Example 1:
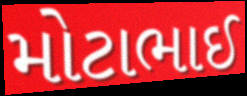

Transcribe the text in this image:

મોટાભાઈ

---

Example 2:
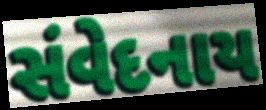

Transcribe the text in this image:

સંવેદનાય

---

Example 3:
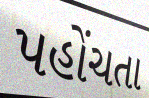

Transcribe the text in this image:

પહોંચતા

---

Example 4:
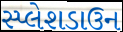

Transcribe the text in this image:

સ્પ્લેશડાઉન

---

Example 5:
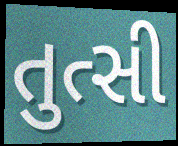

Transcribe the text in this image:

તુત્સી